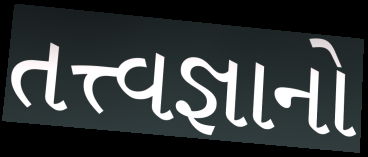
તત્ત્વજ્ઞાનો